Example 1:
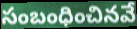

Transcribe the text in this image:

సంబంధించినవే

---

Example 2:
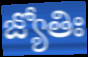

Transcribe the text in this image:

జ్యోతిః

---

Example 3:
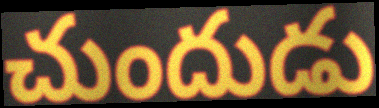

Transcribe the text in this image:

చుందుడు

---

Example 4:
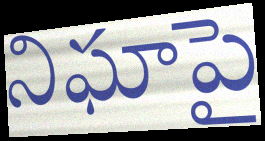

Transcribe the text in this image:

నిఘాపై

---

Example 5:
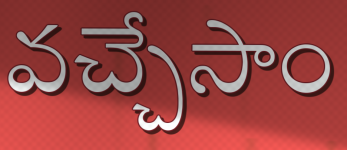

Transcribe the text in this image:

వచ్చేసాం